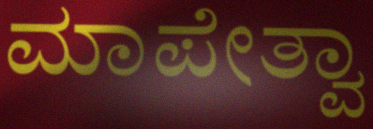
ಮಾಪೇತ್ವಾ